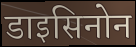
डाइसिनोन